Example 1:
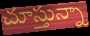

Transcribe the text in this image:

చూస్తున్నా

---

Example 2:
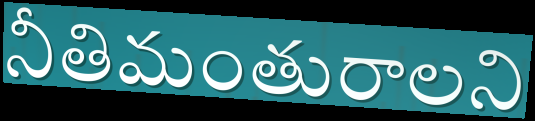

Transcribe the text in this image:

నీతిమంతురాలని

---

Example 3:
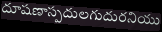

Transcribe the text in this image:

దూషణాస్పదులగుదురనియు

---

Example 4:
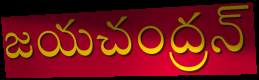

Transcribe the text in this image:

జయచంద్రన్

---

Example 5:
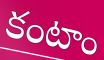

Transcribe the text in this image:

కంటాం